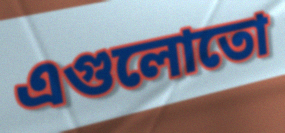
এগুলোতো